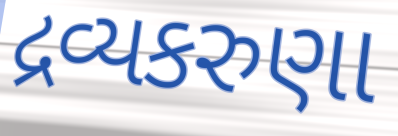
દ્રવ્યકરુણા